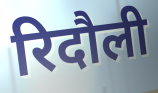
रिदौली